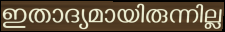
ഇതാദ്യമായിരുന്നില്ല